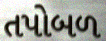
તપોબળ